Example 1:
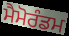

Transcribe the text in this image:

ਮੈਮੋਰੰਡਮ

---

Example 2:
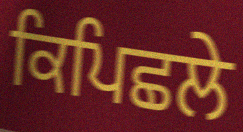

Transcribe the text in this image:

ਕਿਪਿਛਲੇ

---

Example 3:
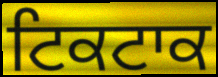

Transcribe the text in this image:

ਟਿਕਟਾਕ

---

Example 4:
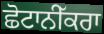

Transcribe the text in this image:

ਛੋਟਾਨੀੱਕਰਾ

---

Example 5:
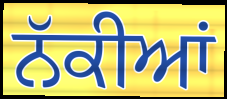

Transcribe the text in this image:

ਨੱਕੀਆਂ